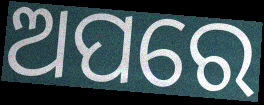
ଅପରେ